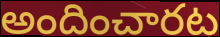
అందించారట